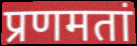
प्रणमतां